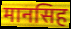
मानसिह